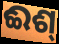
ଈଶ୍